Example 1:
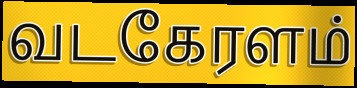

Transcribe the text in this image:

வடகேரளம்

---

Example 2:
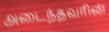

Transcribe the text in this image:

அடைந்தவரின்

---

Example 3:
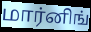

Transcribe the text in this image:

மார்னிங்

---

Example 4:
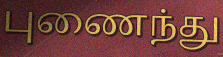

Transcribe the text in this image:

புணைந்து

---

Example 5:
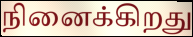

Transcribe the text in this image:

நினைக்கிறது